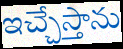
ఇచ్చేస్తాను